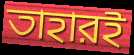
তাহারই